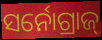
ସର୍ନୋଗ୍ରାଜ୍